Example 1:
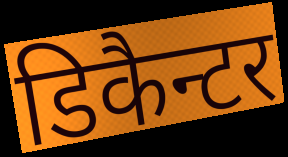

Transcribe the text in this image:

डिकैन्टर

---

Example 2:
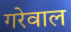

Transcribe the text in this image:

गरेवाल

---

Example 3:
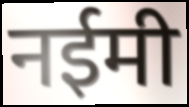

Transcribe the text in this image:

नईमी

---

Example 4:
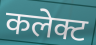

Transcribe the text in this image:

कलेक्ट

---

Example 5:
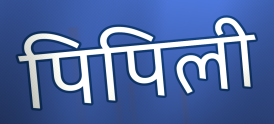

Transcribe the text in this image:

पिपिली